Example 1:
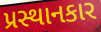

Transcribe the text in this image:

પ્રસ્થાનકાર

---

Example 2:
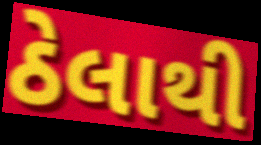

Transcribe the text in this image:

ઠેલાથી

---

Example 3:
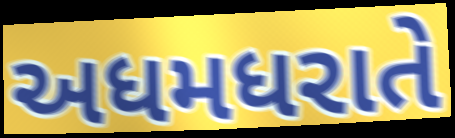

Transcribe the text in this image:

અધમધરાતે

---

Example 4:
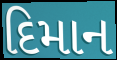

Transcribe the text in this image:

દિમાન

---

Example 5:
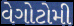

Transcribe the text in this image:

વેગોટોમી